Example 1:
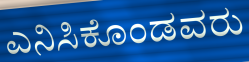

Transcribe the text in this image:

ಎನಿಸಿಕೊಂಡವರು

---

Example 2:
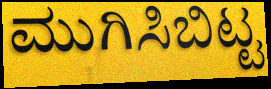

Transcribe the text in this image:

ಮುಗಿಸಿಬಿಟ್ಟ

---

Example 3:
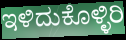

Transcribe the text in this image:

ಇಳಿದುಕೊಳ್ಳಿರಿ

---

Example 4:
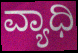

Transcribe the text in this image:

ವ್ಯಾಧಿ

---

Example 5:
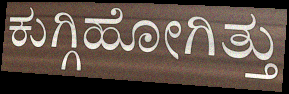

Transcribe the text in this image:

ಕುಗ್ಗಿಹೋಗಿತ್ತು